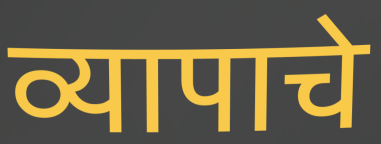
व्यापाचे